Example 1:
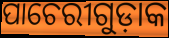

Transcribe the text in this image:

ପାଚେରୀଗୁଡ଼ାକ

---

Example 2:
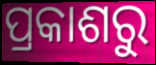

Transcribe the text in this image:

ପ୍ରକାଶରୁ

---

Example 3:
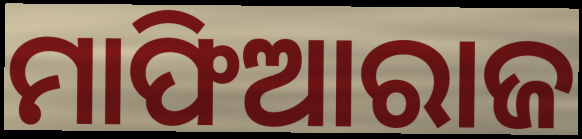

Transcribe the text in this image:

ମାଫିଆରାଜ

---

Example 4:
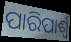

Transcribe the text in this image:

ପାରିପାର୍ଶ୍ୱ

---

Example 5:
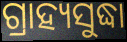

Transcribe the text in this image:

ଗ୍ରାହ୍ୟସୁଦ୍ଧା